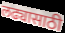
लढ्यासाठी